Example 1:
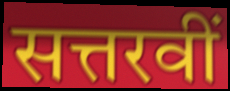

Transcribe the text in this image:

सत्तरवीं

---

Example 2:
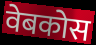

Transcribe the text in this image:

वेबकोस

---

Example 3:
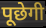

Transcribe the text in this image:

पूछेगी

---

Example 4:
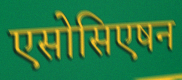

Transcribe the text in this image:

एसोसिएषन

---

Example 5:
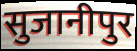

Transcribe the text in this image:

सुजानीपुर